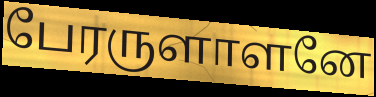
பேரருளாளனே